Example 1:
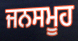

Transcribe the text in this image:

ਜਨਸਮੂਹ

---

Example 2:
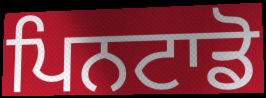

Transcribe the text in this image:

ਪਿਨਟਾਡੋ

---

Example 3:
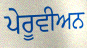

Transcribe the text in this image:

ਪੇਰੂਵੀਅਨ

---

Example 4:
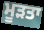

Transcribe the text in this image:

ਮੂੜਤਾ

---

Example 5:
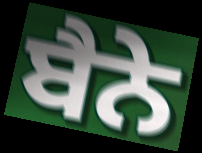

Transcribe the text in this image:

ਬੈਨੇ